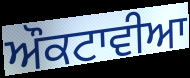
ਔਕਟਾਵੀਆ